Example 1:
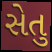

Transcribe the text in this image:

સેતુ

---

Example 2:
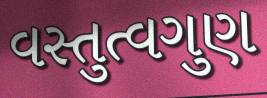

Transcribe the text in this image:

વસ્તુત્વગુણ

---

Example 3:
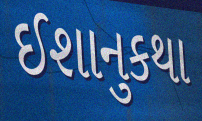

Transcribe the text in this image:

ઈશાનુકથા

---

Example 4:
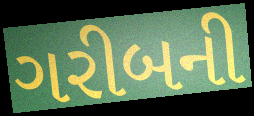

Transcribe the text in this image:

ગરીબની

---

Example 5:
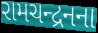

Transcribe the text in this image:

રામચન્દ્રનના